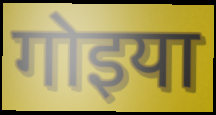
गोइया